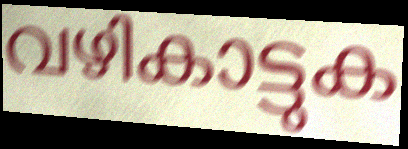
വഴികാട്ടുക